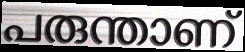
പരുന്താണ്